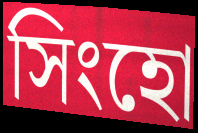
সিংহো